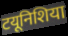
टयूनिशिया